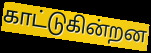
காட்டுகின்றன